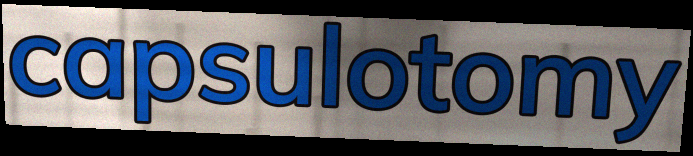
capsulotomy